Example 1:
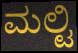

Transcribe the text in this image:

ಮಲ್ಟಿ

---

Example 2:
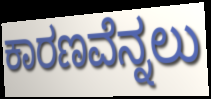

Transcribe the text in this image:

ಕಾರಣವೆನ್ನಲು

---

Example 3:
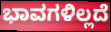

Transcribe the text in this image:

ಭಾವಗಳಿಲ್ಲದೆ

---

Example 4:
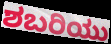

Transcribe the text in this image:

ಶಬರಿಯು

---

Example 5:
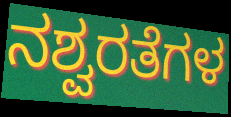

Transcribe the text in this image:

ನಶ್ವರತೆಗಳ